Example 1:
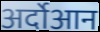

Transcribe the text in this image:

अर्दोआन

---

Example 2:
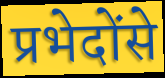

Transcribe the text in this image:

प्रभेदोंसे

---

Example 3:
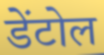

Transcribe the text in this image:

डेंटोल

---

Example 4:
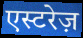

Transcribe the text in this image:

एस्टरेज़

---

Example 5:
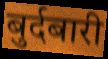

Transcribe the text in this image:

बुर्दबारी